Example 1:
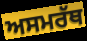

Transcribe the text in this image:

ਅਸਮਰੱਥ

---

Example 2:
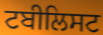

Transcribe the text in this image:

ਟਬੀਲਿਸਟ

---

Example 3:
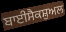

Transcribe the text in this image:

ਬਾਈਸੈਕਸ਼ੁਅਲ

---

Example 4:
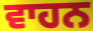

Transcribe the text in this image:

ਵਾਹਨ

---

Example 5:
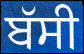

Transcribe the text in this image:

ਬੱਸੀ